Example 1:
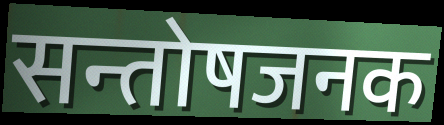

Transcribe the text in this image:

सन्तोषजनक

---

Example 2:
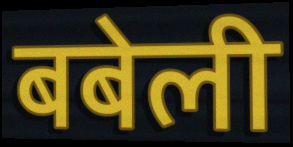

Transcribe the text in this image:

बबेली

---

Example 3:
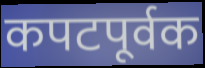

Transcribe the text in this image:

कपटपूर्वक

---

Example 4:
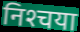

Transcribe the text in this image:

निश्चया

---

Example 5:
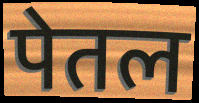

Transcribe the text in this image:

पेतल